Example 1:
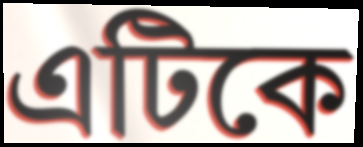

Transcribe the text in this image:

এটিকে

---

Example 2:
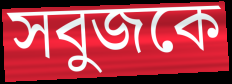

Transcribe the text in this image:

সবুজকে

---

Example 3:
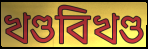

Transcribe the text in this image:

খণ্ডবিখণ্ড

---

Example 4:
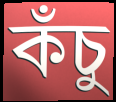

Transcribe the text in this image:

কঁচু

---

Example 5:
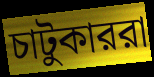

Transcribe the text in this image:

চাটুকাররা